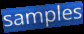
samples